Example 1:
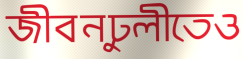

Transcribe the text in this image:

জীবনঢুলীতেও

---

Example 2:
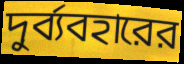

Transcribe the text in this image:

দুর্ব্যবহারের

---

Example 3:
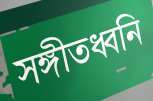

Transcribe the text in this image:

সঙ্গীতধ্বনি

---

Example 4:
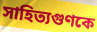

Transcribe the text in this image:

সাহিত্যগুণকে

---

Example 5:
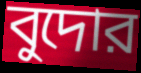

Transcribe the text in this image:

বুদোর